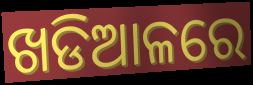
ଖଡିଆଳରେ